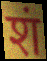
शं